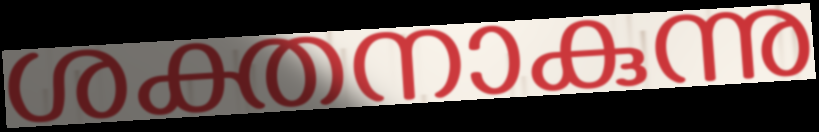
ശക്തനാകുന്നു